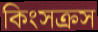
কিংসক্রস